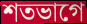
শতভাগে